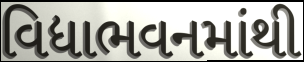
વિદ્યાભવનમાંથી